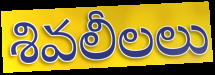
శివలీలలు